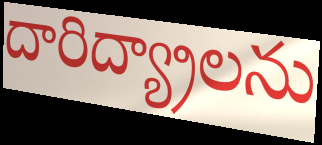
దారిద్య్రాలను